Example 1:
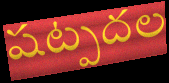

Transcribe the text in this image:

షట్పదల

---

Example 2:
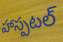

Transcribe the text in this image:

హాస్పటల్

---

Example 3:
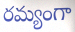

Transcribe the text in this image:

రమ్యంగా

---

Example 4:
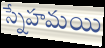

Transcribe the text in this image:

స్నేహమయి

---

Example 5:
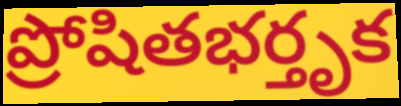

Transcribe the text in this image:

ప్రోషితభర్తృక